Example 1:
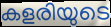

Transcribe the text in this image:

കളരിയുടെ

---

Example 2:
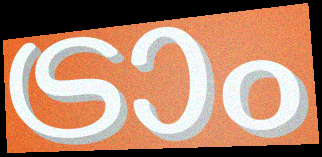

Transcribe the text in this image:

ട്രാം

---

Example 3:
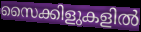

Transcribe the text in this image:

സൈക്കിളുകളിൽ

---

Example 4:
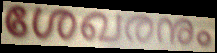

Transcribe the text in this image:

ശേഖരനും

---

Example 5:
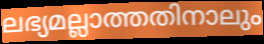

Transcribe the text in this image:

ലഭ്യമല്ലാത്തതിനാലും